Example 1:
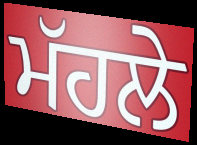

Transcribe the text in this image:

ਮੱਹਲੇ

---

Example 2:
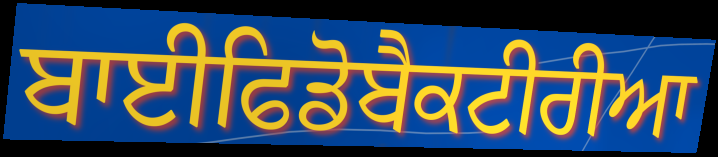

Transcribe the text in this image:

ਬਾਈਫਿਡੋਬੈਕਟੀਰੀਆ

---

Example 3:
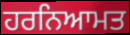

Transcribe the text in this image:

ਹਰਨਿਆਮਤ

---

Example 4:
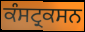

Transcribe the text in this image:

ਕੰਸਟ੍ਰਕਸਨ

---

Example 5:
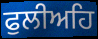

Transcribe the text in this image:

ਫੁਲੀਅਹਿ